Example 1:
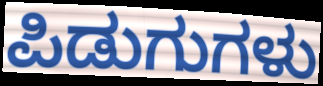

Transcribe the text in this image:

ಪಿಡುಗುಗಳು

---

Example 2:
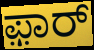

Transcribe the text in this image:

ಫ಼ಾರ್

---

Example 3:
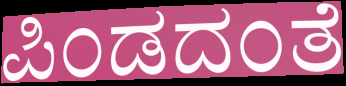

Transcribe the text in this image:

ಪಿಂಡದಂತೆ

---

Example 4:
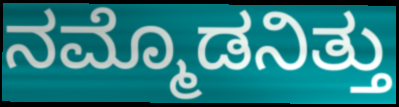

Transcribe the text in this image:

ನಮ್ಮೊಡನಿತ್ತು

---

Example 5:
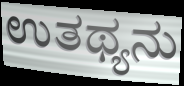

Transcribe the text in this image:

ಉತಥ್ಯನು